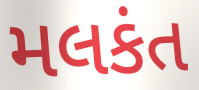
મલકંત